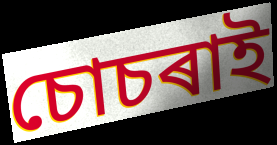
চোচৰাই